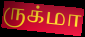
ருக்மா